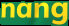
nang